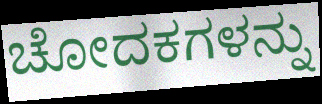
ಚೋದಕಗಳನ್ನು